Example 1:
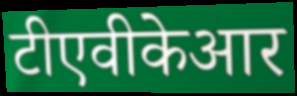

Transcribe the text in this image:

टीएवीकेआर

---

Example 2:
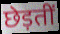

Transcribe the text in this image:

छेड़तीं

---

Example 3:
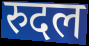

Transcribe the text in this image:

रुदल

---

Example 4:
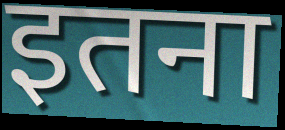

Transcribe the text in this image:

इतना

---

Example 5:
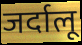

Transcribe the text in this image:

जर्दालू